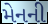
મેનની